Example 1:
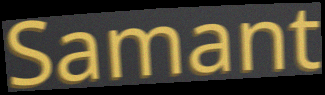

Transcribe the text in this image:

Samant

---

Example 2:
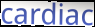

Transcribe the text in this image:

cardiac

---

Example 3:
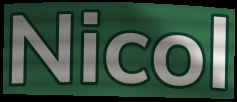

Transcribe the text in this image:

Nicol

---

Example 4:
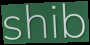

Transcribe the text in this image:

shib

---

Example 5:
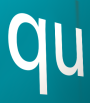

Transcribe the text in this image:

qu